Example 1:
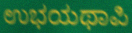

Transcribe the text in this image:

ಉಭಯಥಾಪಿ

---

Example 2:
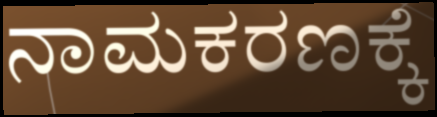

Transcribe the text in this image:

ನಾಮಕರಣಕ್ಕೆ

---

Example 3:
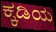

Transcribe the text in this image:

ಕ್ಕಡಿಯ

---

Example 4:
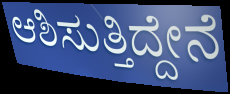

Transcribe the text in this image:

ಆಶಿಸುತ್ತಿದ್ದೇನೆ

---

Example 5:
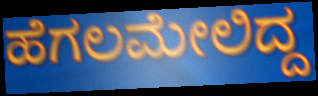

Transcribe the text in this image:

ಹೆಗಲಮೇಲಿದ್ದ